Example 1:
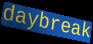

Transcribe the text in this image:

daybreak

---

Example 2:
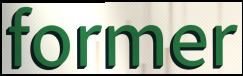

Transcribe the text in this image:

former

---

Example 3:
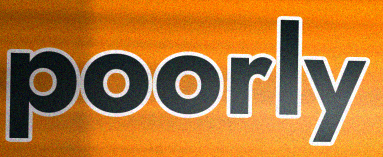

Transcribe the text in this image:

poorly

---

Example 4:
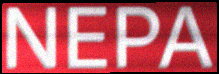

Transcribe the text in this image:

NEPA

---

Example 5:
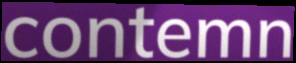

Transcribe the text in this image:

contemn